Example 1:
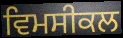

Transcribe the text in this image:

ਵਿਮਸੀਕਲ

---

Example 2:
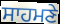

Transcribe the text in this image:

ਸਾਹਮਣੇ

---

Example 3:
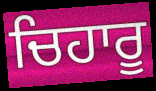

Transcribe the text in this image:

ਚਿਹਾਰੂ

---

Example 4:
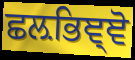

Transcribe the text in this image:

ਛਲ਼ਭਿਞ੍ਞੋ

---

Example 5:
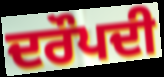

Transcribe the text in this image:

ਦਰੌਪਦੀ